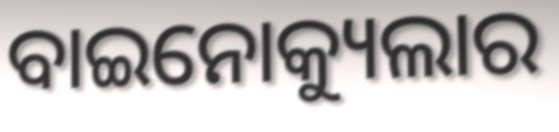
ବାଇନୋକ୍ୟୁଲାର